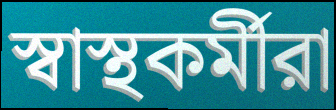
স্বাস্থকর্মীরা